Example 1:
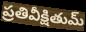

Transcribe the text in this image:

ప్రతివీక్షితుమ్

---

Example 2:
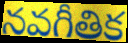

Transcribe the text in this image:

నవగీతిక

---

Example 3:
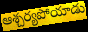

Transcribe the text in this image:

ఆశ్చర్యపోయాడు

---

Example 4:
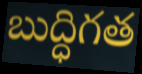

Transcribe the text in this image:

బుద్ధిగత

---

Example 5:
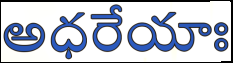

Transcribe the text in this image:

అధరేయాః